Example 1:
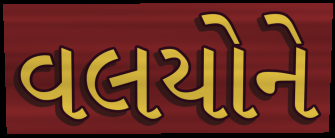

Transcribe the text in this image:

વલયોને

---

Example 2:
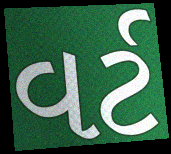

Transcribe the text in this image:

વર્ટ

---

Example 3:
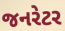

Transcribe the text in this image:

જનરેટર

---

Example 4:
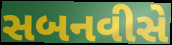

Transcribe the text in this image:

સબનવીસે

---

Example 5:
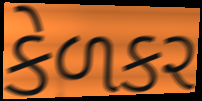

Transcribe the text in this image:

કેળકર